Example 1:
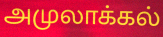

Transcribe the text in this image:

அமுலாக்கல்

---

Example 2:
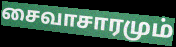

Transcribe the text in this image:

சைவாசாரமும்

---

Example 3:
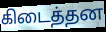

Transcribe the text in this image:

கிடைத்தன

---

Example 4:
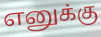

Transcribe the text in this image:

எனுக்கு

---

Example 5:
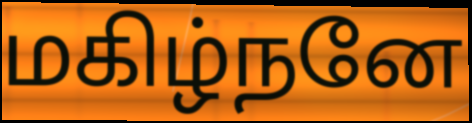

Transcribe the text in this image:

மகிழ்நனே